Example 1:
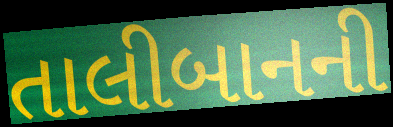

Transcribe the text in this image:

તાલીબાનની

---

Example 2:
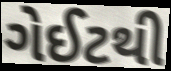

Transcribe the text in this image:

ગેઈટથી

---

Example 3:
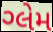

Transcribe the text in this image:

ગ્લેમ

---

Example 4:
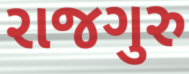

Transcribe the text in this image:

રાજગુરુ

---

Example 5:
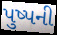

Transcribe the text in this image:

પુષ્પની